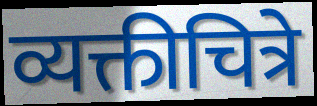
व्यक्तीचित्रे